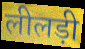
लीलड़ी